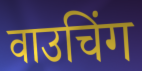
वाउचिंग